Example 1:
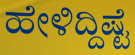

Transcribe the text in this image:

ಹೇಳಿದ್ದಿಷ್ಟೆ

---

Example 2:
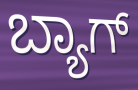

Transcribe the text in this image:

ಬ್ಯಾಗ್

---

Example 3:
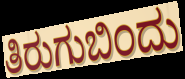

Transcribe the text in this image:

ತಿರುಗುಬಿಂದು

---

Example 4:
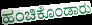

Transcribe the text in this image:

ಹಂಚಿಕೊಂಡಾರು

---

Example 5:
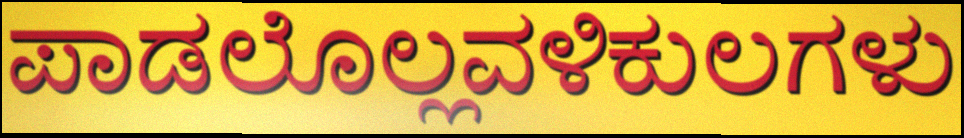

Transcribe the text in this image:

ಪಾಡಲೊಲ್ಲವಳಿಕುಲಗಳು